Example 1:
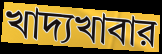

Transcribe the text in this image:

খাদ্যখাবার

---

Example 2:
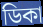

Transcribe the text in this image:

ডিকা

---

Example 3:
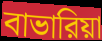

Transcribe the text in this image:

বাভারিয়া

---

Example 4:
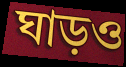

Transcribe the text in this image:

ঘাড়ও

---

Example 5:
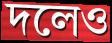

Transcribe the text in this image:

দলেও